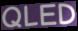
QLED